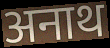
अनाथ